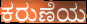
ಕರುಣೆಯ